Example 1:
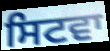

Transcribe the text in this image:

ਸਿਟਵਾ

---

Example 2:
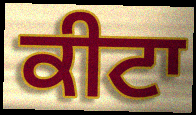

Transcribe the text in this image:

ਕੀਟਾ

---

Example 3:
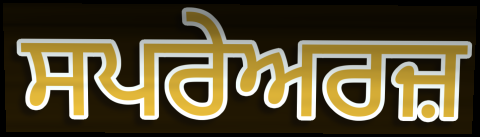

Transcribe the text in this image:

ਸਪਰੇਅਰਜ਼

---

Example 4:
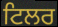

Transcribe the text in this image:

ਟਿਲਰ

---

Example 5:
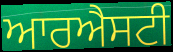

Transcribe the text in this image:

ਆਰਐਸਟੀ